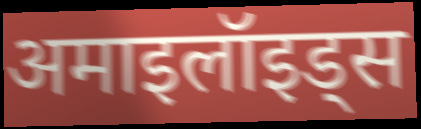
अमाइलॉइड्स